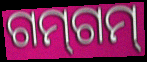
ଗମ୍‍ଗମ୍